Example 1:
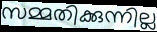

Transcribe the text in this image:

സമ്മതിക്കുന്നില്ല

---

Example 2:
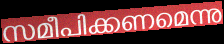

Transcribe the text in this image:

സമീപിക്കണമെന്നു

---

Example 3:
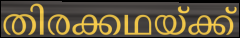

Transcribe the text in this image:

തിരക്കഥയ്ക്ക്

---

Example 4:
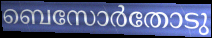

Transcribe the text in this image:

ബെസോർതോടു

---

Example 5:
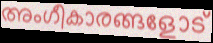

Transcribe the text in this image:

അംഗീകാരങ്ങളോട്